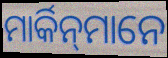
ମାର୍କିନ୍‌ମାନେ